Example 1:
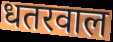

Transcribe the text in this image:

धतरवाल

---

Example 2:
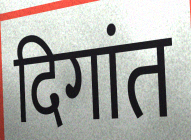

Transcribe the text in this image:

दिगांत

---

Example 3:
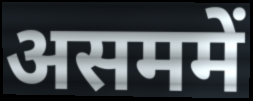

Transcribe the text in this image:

असममें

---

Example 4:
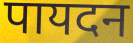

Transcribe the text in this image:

पायदन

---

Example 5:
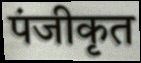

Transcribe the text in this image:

पंजीकृत